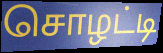
சொழட்டி